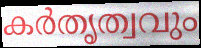
കർതൃത്വവും